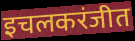
इचलकरंजीत